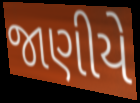
જાણીયે